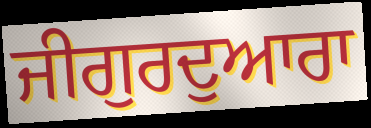
ਜੀਗੁਰਦੁਆਰਾ